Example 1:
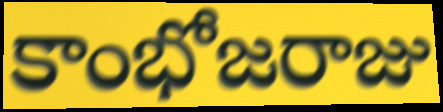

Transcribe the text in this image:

కాంభోజరాజు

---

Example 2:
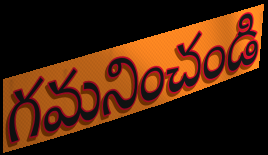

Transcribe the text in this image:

గమనించండి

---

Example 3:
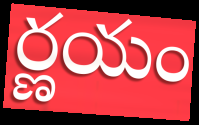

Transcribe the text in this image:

ర్ణయం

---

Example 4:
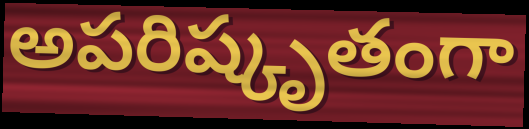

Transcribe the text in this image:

అపరిష్కృతంగా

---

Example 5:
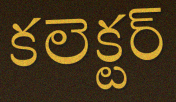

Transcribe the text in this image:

కలెక్టర్